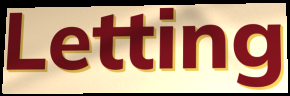
Letting